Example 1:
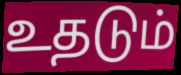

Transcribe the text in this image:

உதடும்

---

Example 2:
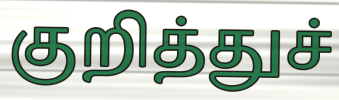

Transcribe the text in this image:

குறித்துச்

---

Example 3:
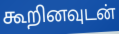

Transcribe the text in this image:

கூறினவுடன்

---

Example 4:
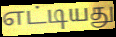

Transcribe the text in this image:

எட்டியது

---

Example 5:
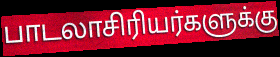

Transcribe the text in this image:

பாடலாசிரியர்களுக்கு